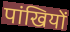
पांखियों